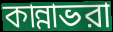
কান্নাভরা